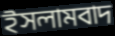
ইসলামবাদ